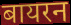
बायरन